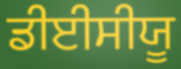
ਡੀਈਸੀਯੂ